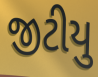
જીટીયુ